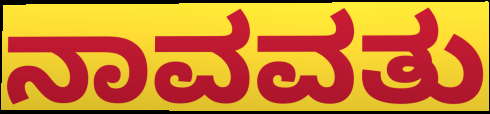
ನಾವವತು